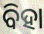
ବିହା